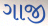
ગાજી